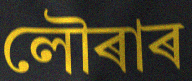
লৌৰাৰ